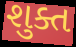
શુક્ત